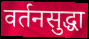
वर्तनसुद्धा